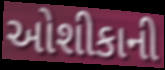
ઓશીકાની